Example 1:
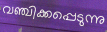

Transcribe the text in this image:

വഞ്ചിക്കപ്പെടുന്നു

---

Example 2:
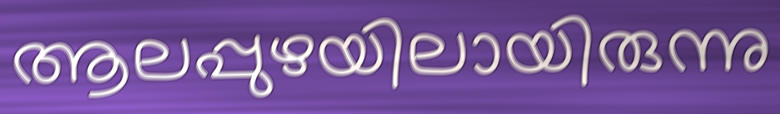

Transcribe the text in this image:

ആലപ്പുഴയിലായിരുന്നു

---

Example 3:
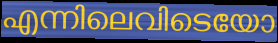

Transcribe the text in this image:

എന്നിലെവിടെയോ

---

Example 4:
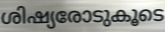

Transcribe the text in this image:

ശിഷ്യരോടുകൂടെ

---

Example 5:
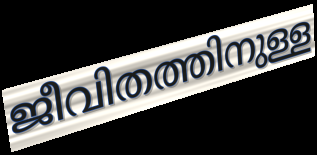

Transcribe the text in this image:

ജീവിതത്തിനുള്ള